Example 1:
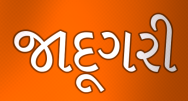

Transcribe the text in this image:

જાદૂગરી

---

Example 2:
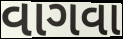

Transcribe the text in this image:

વાગવા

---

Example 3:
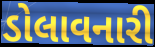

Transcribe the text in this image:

ડોલાવનારી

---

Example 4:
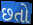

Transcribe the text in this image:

છતો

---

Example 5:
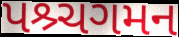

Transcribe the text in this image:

પશ્ર્ચગમન